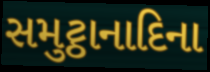
સમુટ્ઠાનાદિના